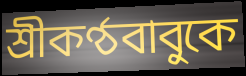
শ্রীকণ্ঠবাবুকে